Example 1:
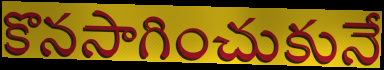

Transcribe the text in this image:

కొనసాగించుకునే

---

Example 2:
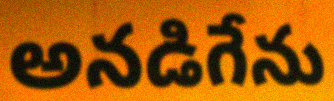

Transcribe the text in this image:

అనడిగేను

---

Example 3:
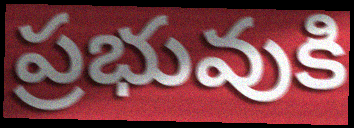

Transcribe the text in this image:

ప్రభువుకి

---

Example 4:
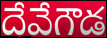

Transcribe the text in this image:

దేవేగౌడ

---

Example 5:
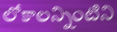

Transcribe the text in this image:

లోకాలన్నింటిని